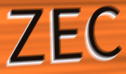
ZEC